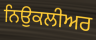
ਨਿਉਕਲੀਅਰ